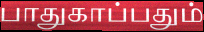
பாதுகாப்பதும்